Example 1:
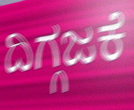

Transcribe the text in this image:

ದಿಗ್ಗಜಕೆ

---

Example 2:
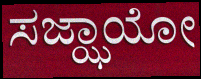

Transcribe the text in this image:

ಸಜ್ಝಾಯೋ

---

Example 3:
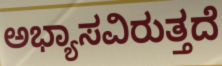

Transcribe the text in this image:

ಅಭ್ಯಾಸವಿರುತ್ತದೆ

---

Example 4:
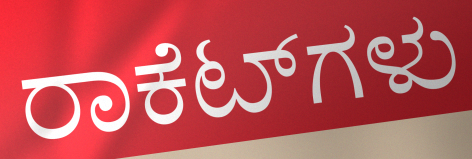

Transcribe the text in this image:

ರಾಕೆಟ್‌ಗಳು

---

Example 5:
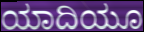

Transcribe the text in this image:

ಯಾದಿಯೂ